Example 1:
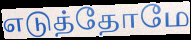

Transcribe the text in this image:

எடுத்தோமே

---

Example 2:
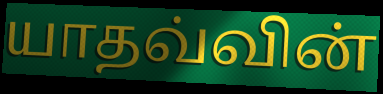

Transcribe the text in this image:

யாதவ்வின்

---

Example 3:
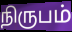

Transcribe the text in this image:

நிருபம்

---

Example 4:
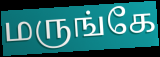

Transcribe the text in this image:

மருங்கே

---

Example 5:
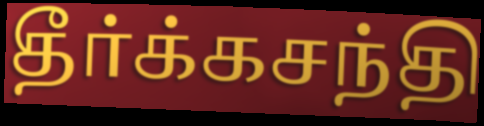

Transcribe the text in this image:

தீர்க்கசந்தி